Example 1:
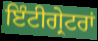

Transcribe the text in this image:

ਇੰਟੀਗ੍ਰੇਟਰਾਂ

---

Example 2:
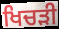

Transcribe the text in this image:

ਖਿਚੜੀ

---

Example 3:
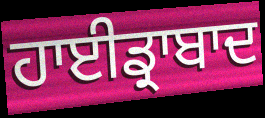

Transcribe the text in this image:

ਹਾਈਡ੍ਰਾਬਾਦ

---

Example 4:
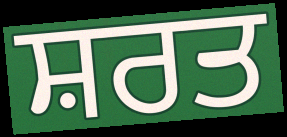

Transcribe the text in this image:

ਸ਼ਰਤ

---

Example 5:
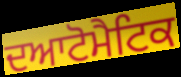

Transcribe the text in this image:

ਦਆਟੋਮੈਟਿਕ